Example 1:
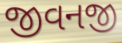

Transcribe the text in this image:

જીવનજી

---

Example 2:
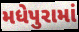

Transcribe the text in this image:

મધેપુરામાં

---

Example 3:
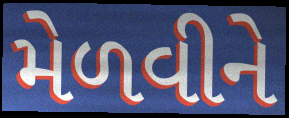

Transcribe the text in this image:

મેળવીને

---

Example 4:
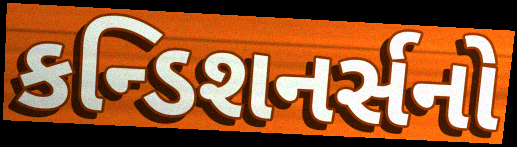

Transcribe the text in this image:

કન્ડિશનર્સનો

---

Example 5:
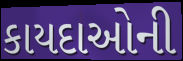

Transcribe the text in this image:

કાયદાઓની